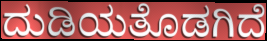
ದುಡಿಯತೊಡಗಿದೆ